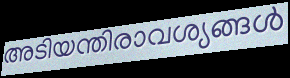
അടിയന്തിരാവശ്യങ്ങൾ